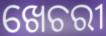
ଖେଚରୀ